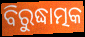
ବିରୁଦ୍ଧାତ୍ମକ